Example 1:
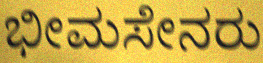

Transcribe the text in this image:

ಭೀಮಸೇನರು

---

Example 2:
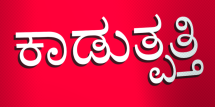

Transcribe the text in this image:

ಕಾಡುತ್ಪತ್ತಿ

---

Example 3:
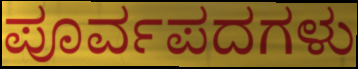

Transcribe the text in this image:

ಪೂರ್ವಪದಗಳು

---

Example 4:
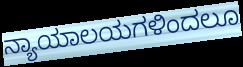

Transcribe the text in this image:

ನ್ಯಾಯಾಲಯಗಳಿಂದಲೂ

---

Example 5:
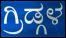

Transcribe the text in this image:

ಗ್ರಿಡ್ಗಳ